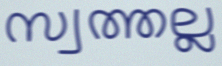
സ്വത്തല്ല